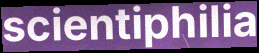
scientiphilia